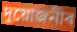
দুয়োজনীৰ